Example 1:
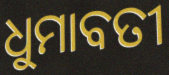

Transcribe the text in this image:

ଧୁମାବତୀ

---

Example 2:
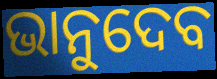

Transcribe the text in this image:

ଭାନୁଦେବ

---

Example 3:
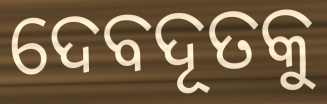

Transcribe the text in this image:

ଦେବଦୂତକୁ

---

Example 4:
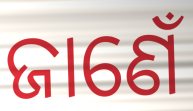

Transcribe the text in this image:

ଜାଣେଁ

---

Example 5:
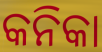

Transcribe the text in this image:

କନିକା